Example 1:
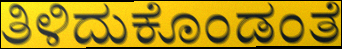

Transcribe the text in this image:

ತಿಳಿದುಕೊಂಡಂತೆ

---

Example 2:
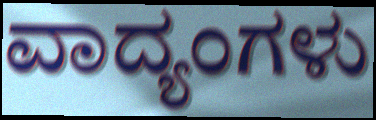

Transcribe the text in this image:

ವಾದ್ಯಂಗಳು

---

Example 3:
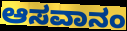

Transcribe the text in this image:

ಆಸವಾನಂ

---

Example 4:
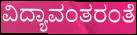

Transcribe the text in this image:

ವಿದ್ಯಾವಂತರಂತೆ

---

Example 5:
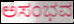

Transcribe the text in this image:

ಅಸಂಭವ